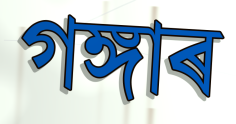
গঙ্গাৰ